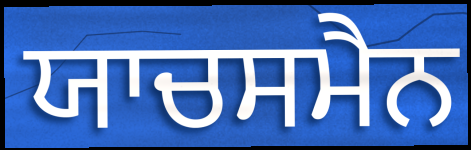
ਯਾਚਸਮੈਨ